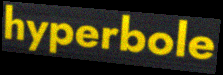
hyperbole